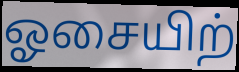
ஓசையிற்